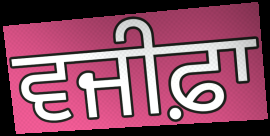
ਵਜੀਫ਼ਾ